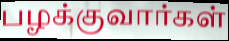
பழக்குவார்கள்